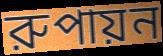
ৰুপায়ন